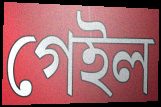
গেইল